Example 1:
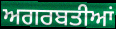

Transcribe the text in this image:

ਅਗਰਬਤੀਆਂ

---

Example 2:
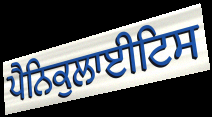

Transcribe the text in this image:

ਪੈਨਿਕੁਲਾਈਟਿਸ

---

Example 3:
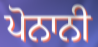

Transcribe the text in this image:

ਪੋਨਾਨੀ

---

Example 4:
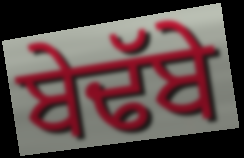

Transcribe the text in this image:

ਬੇਢੱਬੇ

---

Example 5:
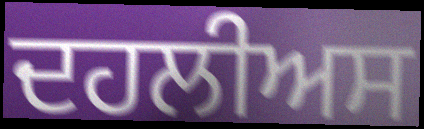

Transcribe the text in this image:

ਦਹਲੀਅਸ